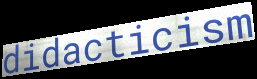
didacticism